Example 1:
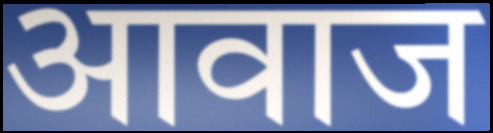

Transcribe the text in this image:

आवाज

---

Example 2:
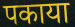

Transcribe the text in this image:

पकाया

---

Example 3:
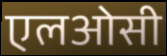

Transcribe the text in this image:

एलओसी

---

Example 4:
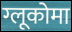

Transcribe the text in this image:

ग्लूकोमा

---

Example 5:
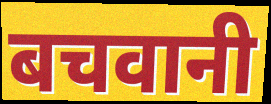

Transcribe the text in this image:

बचवानी